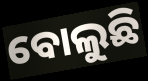
ବୋଲୁଛି